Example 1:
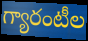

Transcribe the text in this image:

గ్యారంటీల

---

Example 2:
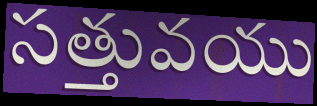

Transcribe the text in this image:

సత్తువయు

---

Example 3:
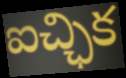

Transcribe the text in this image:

ఐచ్ఛిక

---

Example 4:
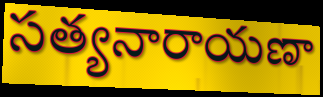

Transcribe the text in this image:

సత్యనారాయణా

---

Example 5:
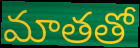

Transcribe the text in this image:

మాతతో